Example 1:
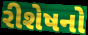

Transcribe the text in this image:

રીશેષનો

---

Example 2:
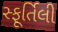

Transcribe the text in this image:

સ્ફૂર્તિલી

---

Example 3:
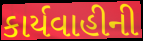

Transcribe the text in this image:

કાર્યવાહીની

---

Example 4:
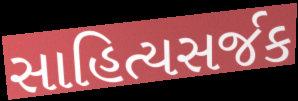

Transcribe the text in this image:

સાહિત્યસર્જક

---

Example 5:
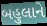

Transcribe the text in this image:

બહુલાને